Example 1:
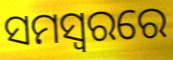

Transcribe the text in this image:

ସମସ୍ବରରେ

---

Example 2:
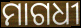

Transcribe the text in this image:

ମାଗଧୀ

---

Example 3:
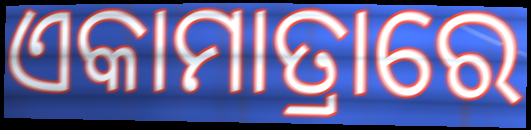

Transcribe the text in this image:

ଏକାମାତ୍ରାରେ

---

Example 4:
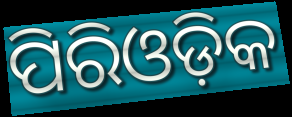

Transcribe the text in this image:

ପିରିଓଡ଼ିକ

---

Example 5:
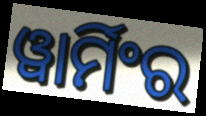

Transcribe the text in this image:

ୱାର୍ମିଂର